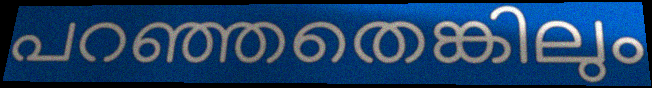
പറഞ്ഞതെങ്കിലും